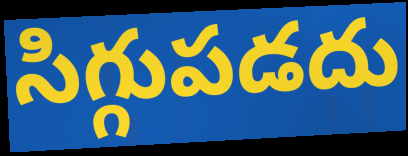
సిగ్గుపడదు